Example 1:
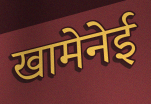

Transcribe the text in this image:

खामेनेई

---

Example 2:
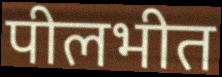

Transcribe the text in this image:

पीलभीत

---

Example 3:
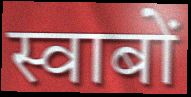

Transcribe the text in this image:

स्वाबों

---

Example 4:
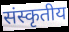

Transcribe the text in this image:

संस्कृतीय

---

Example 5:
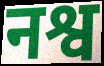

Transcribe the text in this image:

नश्व